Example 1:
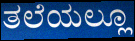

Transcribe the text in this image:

ತಲೆಯಲ್ಲೂ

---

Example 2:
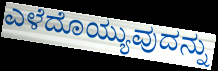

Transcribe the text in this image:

ಎಳೆದೊಯ್ಯುವುದನ್ನು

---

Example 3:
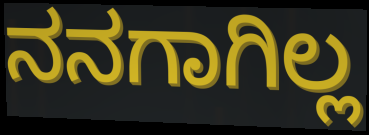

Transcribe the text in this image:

ನನಗಾಗಿಲ್ಲ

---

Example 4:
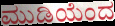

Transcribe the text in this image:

ಮುಡಿಯೆಂದ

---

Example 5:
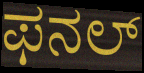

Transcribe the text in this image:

ಫನಲ್